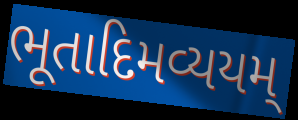
ભૂતાદિમવ્યયમ્